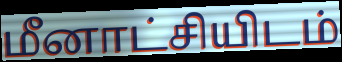
மீனாட்சியிடம்